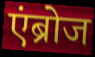
एंब्रोज